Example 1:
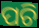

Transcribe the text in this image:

ପଚି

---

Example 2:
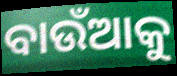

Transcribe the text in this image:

ବାଉଁଆକୁ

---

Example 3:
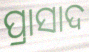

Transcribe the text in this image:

ପ୍ରାସାଦ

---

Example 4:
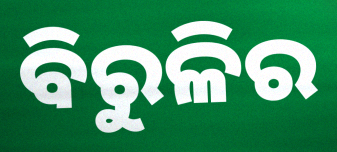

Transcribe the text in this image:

ବିରୁଳିର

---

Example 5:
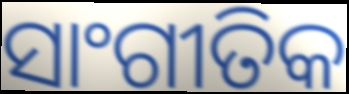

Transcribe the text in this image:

ସାଂଗୀତିକ